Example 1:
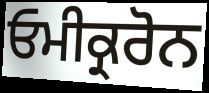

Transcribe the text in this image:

ਓਮੀਕ੍ਰਰੋਨ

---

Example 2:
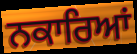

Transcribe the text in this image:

ਨਕਾਰਿਆਂ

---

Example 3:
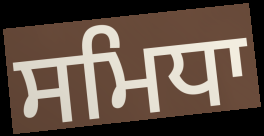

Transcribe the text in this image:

ਸਮਿਧਾ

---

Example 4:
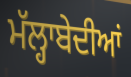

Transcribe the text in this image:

ਮੱਲ੍ਹਾਬੇਦੀਆਂ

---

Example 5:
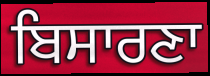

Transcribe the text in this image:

ਬਿਸਾਰਣਾ